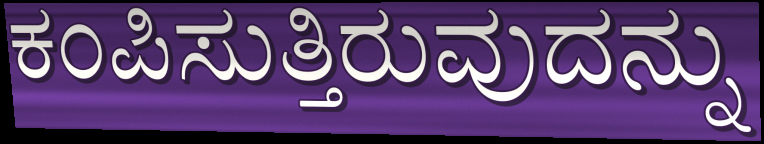
ಕಂಪಿಸುತ್ತಿರುವುದನ್ನು